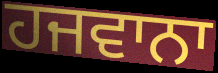
ਹਜਵਾਨਾ